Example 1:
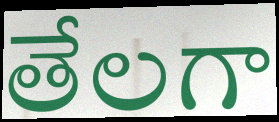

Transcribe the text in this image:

తేలగా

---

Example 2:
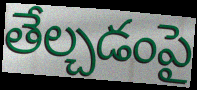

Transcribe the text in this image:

తేల్చడంపై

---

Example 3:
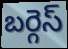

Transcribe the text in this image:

బర్గెస్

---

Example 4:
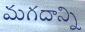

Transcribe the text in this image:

మగదాన్ని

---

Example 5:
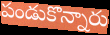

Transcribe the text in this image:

పండుకొన్నారు